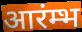
आरंम्भ